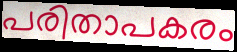
പരിതാപകരം